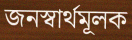
জনস্বার্থমূলক